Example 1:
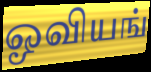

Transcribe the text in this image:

ஓவியங்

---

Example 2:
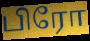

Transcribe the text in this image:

பிரோ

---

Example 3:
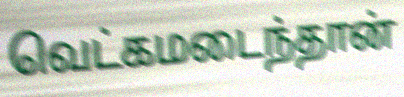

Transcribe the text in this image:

வெட்கமடைந்தான்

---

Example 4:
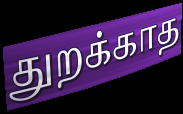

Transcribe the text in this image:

துறக்காத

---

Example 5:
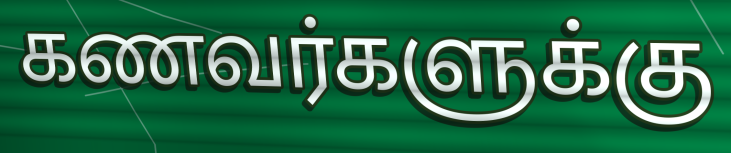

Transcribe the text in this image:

கணவர்களுக்கு